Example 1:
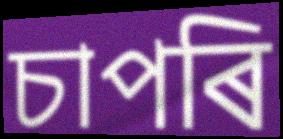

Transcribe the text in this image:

চাপৰি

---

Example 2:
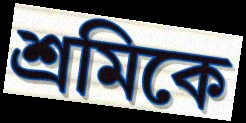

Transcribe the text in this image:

শ্ৰমিকে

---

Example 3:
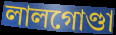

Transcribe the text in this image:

লালগোণ্ডা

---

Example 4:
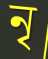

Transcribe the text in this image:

নৃ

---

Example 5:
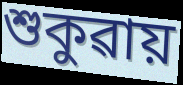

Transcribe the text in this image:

শুকুৱায়